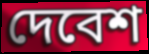
দেবেশ